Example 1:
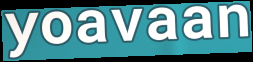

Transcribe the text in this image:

yoavaan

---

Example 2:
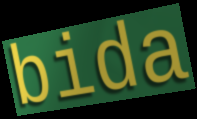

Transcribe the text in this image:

bida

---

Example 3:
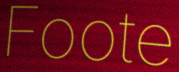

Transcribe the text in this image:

Foote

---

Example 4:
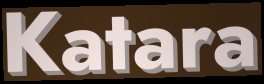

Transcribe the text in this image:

Katara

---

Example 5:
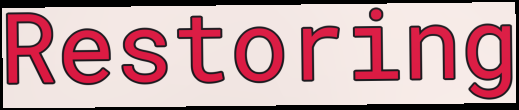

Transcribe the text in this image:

Restoring